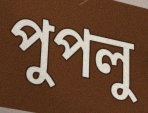
পুপলু